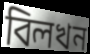
বিলখন